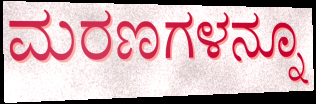
ಮರಣಗಳನ್ನೂ